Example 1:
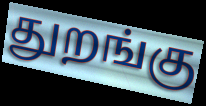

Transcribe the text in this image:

துறங்கு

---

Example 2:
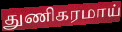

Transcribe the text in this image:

துணிகரமாய்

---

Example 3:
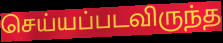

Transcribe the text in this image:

செய்யப்படவிருந்த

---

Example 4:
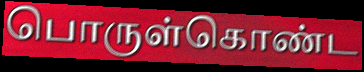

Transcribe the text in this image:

பொருள்கொண்ட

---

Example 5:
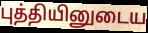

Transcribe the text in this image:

புத்தியினுடைய